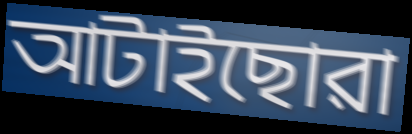
আটাইছোৱা